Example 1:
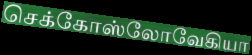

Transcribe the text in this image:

செக்கோஸ்லோவேகியா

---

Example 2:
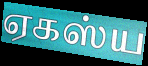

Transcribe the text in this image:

ஏகஸ்ய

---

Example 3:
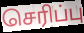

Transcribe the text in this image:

செரிப்பு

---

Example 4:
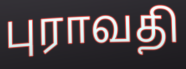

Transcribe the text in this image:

புராவதி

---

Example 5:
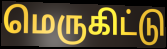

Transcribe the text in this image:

மெருகிட்டு